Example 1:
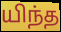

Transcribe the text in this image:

யிந்த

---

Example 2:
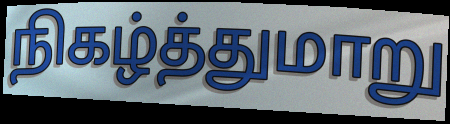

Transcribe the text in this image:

நிகழ்த்துமாறு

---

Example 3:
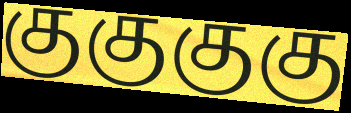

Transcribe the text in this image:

குகுகுகு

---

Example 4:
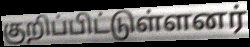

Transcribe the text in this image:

குறிப்பிட்டுள்ளனர்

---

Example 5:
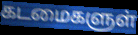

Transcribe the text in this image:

கடமைகளுள்